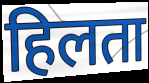
हिलता